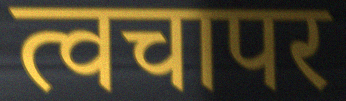
त्वचापर